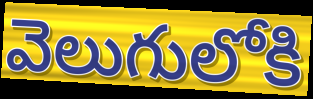
వెలుగులోకి